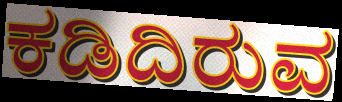
ಕಡಿದಿರುವ